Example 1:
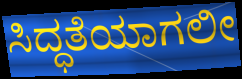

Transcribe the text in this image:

ಸಿದ್ಧತೆಯಾಗಲೀ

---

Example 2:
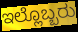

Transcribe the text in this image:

ಇಲ್ಲೊಬ್ಬರು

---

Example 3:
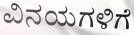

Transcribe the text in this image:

ವಿನಯಗಳಿಗೆ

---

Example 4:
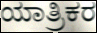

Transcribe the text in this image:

ಯಾತ್ರಿಕರ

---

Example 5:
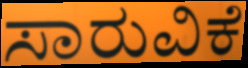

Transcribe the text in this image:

ಸಾರುವಿಕೆ